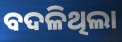
ବଦଳିଥିଲା